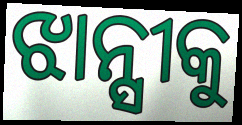
ଝାନ୍ସୀକୁ